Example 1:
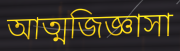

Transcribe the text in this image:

আত্মজিজ্ঞাসা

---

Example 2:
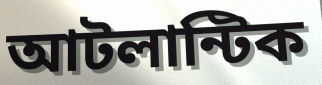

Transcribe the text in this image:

আটলান্টিক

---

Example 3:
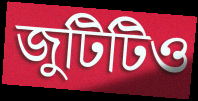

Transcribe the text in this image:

জুটিটিও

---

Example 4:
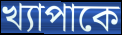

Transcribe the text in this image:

খ্যাপাকে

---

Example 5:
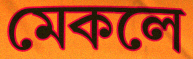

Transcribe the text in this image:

মেকলে